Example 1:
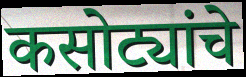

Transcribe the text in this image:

कसोट्यांचे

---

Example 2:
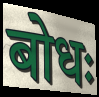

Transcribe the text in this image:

बोधः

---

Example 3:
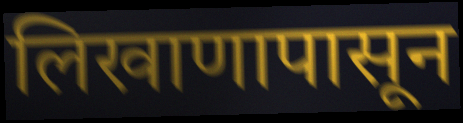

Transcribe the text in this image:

लिखाणापासून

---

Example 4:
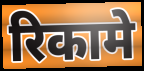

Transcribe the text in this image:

रिकामे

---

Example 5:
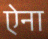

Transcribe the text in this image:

ऐना